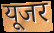
यूजर